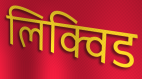
लिक्विड